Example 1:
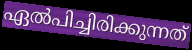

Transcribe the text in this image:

ഏൽപിച്ചിരിക്കുന്നത്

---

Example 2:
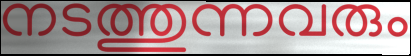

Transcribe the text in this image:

നടത്തുന്നവരും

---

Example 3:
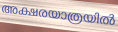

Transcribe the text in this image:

അക്ഷരയാത്രയിൽ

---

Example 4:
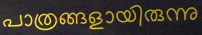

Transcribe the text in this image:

പാത്രങ്ങളായിരുന്നു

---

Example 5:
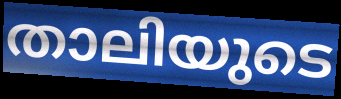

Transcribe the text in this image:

താലിയുടെ